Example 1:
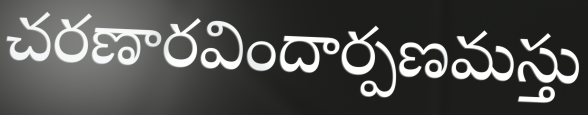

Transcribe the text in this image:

చరణారవిందార్పణమస్తు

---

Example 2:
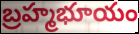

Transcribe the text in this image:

బ్రహ్మభూయం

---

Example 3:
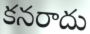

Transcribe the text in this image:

కనరాదు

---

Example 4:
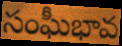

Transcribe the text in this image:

సంఘీభావ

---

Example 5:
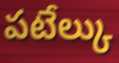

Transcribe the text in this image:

పటేల్కు